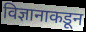
विज्ञानाकडून